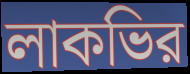
লাকভির